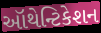
ઑથેન્ટિકેશન